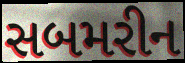
સબમરીન